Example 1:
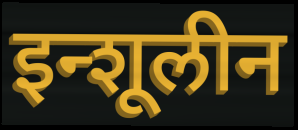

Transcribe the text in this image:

इन्शूलीन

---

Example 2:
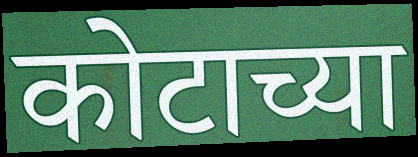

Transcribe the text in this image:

कोटाच्या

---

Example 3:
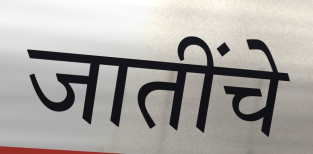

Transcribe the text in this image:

जातींचे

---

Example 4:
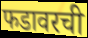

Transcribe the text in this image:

फडावरची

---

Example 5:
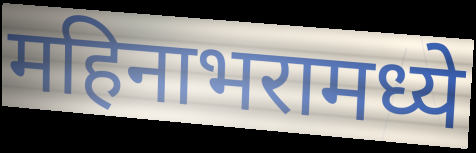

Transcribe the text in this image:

महिनाभरामध्ये